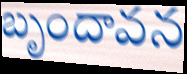
బృందావన